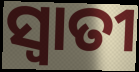
ସ୍ୱାତୀ